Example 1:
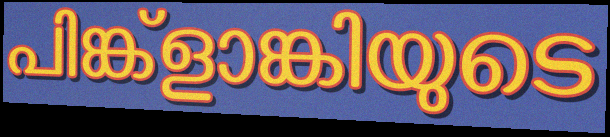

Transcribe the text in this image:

പിങ്ക്ളാങ്കിയുടെ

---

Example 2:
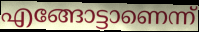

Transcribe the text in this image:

എങ്ങോട്ടാണെന്ന്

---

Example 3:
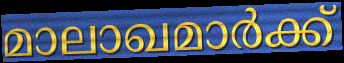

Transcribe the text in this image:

മാലാഖമാർക്ക്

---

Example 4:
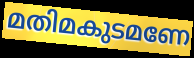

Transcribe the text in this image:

മതിമകുടമണേ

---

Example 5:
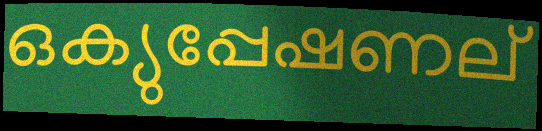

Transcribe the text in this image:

ഒക്യുപ്പേഷണല്